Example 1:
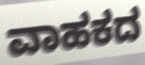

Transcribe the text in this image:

ವಾಹಕದ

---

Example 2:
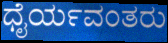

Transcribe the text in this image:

ಧೈರ್ಯವಂತರು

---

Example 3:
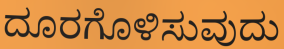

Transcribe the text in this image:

ದೂರಗೊಳಿಸುವುದು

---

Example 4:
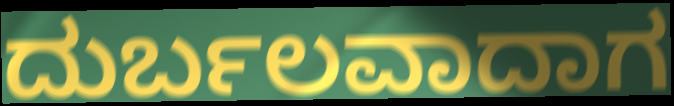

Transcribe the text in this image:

ದುರ್ಬಲವಾದಾಗ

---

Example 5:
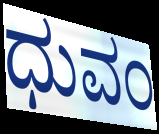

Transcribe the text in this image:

ಧುವಂ